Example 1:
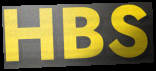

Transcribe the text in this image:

HBS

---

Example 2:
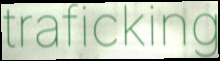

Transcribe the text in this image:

traficking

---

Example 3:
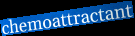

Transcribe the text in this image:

chemoattractant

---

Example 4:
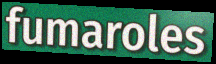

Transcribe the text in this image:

fumaroles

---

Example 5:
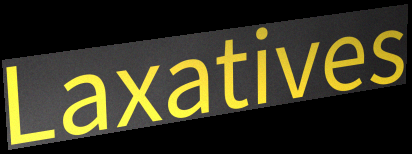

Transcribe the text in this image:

Laxatives